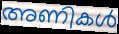
അണികൾ